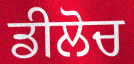
ਡੀਲੋਚ